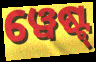
ୱେଷ୍ଟ୍